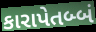
કારાપેતબ્બં